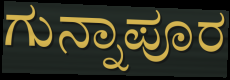
ಗುನ್ನಾಪೂರ